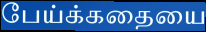
பேய்க்கதையை